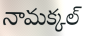
నామక్కల్